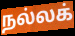
நல்லக்